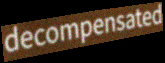
decompensated